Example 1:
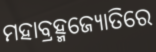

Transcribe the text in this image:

ମହାବ୍ରହ୍ମଜ୍ୟୋତିରେ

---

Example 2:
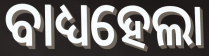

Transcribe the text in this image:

ବାଧ୍ୟହେଲା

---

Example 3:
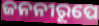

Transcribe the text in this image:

ଜନନୀରୂପେ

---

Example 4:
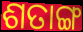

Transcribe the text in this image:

ଶତାଙ୍ଗ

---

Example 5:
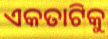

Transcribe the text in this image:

ଏକତାଟିକୁ